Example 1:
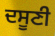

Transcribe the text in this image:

ਦਸੂਣੀ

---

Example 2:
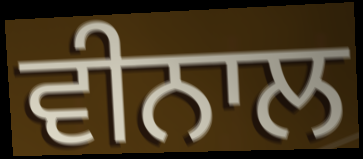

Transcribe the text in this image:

ਵੀਨਾਲ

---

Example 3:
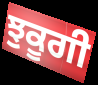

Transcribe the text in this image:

ਝੁਕੂਗੀ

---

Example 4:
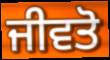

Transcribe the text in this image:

ਜੀਵਤੋ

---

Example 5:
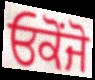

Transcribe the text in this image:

ਓਕੋਂਜੋ